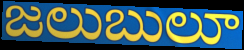
జలుబులూ